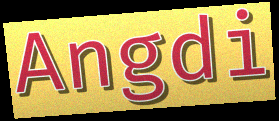
Angdi